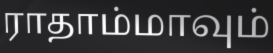
ராதாம்மாவும்